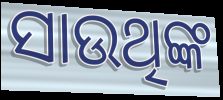
ସାଉଥିଙ୍କ